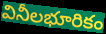
వినీలభూరికం